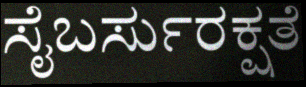
ಸೈಬರ್ಸುರಕ್ಷತೆ